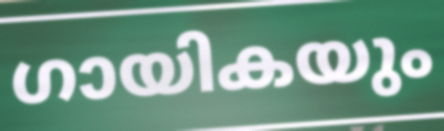
ഗായികയും